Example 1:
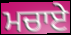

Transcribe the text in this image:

ਮਚਾਏ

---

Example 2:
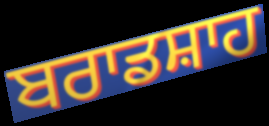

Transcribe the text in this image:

ਬਰਾਡਸ਼ਾਹ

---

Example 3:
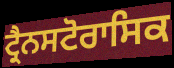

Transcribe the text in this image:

ਟ੍ਰੈਨਸਟੋਰਾਸਿਕ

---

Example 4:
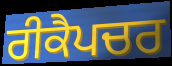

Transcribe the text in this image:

ਰੀਕੈਪਚਰ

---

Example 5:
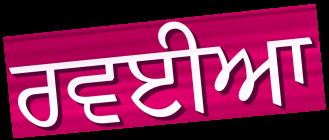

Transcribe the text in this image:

ਰਵਈਆ